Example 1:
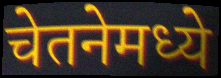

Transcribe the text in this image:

चेतनेमध्ये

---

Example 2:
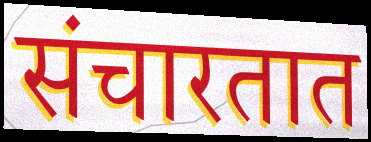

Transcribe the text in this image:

संचारतात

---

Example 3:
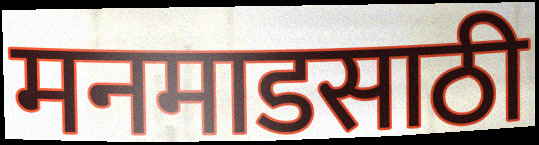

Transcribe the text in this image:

मनमाडसाठी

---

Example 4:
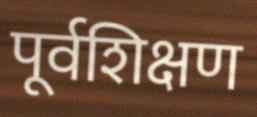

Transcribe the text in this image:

पूर्वशिक्षण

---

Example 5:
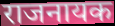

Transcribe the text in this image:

राजनायक